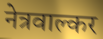
नेत्रवाल्कर